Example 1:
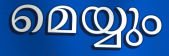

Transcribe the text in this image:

മെയ്യും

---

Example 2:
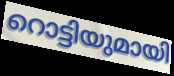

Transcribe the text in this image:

റൊട്ടിയുമായി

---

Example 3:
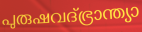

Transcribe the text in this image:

പുരുഷവദ്ഭ്രാന്ത്യാ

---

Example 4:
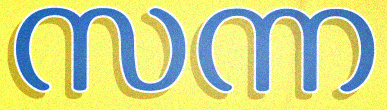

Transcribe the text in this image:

സന്ന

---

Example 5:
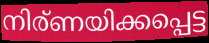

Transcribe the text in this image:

നിര്ണയിക്കപ്പെട്ട